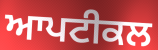
ਆਪਟੀਕਲ